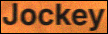
Jockey